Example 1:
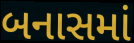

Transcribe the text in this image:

બનાસમાં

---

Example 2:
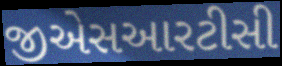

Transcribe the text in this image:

જીએસઆરટીસી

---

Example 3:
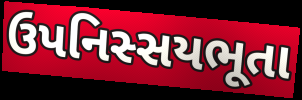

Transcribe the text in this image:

ઉપનિસ્સયભૂતા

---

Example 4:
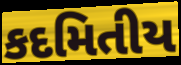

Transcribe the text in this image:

કદમિતીય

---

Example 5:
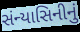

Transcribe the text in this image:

સંન્યાસિનીનું